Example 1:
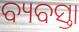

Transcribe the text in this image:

ବ୍ୟବସ୍ତା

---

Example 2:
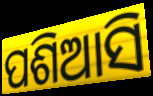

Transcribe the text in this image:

ପଶିଆସି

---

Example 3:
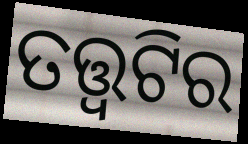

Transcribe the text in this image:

ତତ୍ତ୍ଵଟିର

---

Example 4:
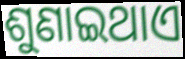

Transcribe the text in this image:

ଶୁଣାଇଥାଏ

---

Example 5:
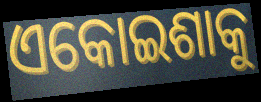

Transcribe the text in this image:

ଏକୋଇଶାକୁ